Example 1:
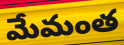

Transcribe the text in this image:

మేమంత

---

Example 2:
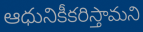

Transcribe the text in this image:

ఆధునికీకరిస్తామని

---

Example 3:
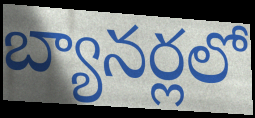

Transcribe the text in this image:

బ్యానర్లలో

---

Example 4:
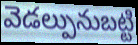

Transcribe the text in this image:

వెడల్పునుబట్టి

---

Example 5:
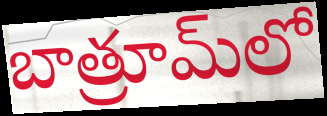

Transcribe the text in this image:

బాత్రూమ్‌లో